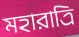
মহারাত্রি